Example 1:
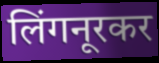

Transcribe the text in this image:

लिंगनूरकर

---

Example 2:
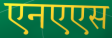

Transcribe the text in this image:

एनएएस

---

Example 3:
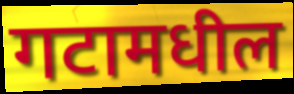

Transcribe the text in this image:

गटामधील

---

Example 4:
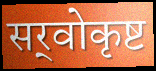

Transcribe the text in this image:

सर्वोकृष्ट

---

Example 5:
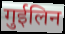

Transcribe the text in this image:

गुईलिन